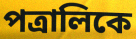
পত্রালিকে